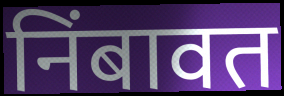
निंबावत